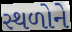
સ્થળોને